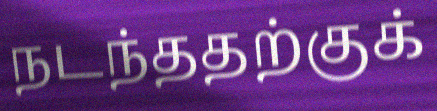
நடந்ததற்குக்